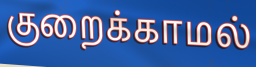
குறைக்காமல்